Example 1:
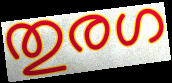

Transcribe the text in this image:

തുരഗ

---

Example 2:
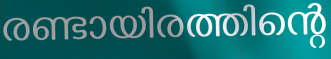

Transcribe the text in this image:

രണ്ടായിരത്തിന്റെ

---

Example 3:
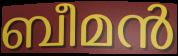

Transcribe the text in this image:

ബീമൻ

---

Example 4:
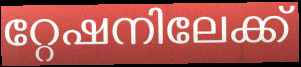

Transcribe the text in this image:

റ്റേഷനിലേക്ക്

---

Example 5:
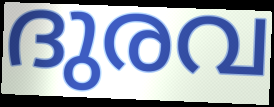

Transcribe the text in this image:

ദുരവ